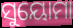
ସୁୟୋମା